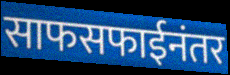
साफसफाईनंतर